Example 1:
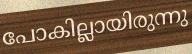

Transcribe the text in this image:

പോകില്ലായിരുന്നു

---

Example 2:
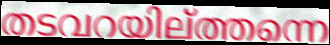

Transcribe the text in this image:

തടവറയില്ത്തന്നെ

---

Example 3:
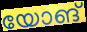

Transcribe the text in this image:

യോങ്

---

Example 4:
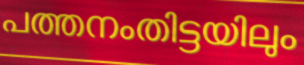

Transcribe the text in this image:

പത്തനംതിട്ടയിലും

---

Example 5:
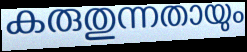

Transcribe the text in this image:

കരുതുന്നതായും